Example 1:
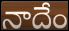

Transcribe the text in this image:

నాదేం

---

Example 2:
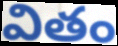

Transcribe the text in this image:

వితం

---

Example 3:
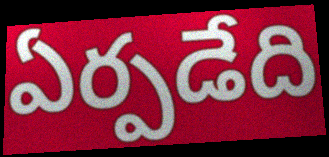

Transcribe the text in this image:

ఏర్పడేది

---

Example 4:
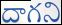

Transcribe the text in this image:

దాగని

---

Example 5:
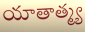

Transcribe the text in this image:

యాతాత్మ్య